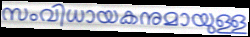
സംവിധായകനുമായുള്ള